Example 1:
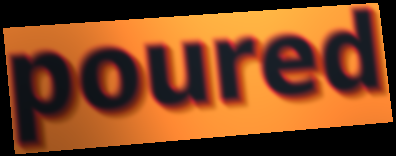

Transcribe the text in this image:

poured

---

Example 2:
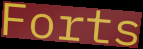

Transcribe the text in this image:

Forts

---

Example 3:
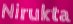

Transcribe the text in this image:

Nirukta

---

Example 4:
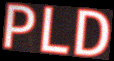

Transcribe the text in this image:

PLD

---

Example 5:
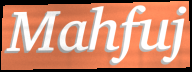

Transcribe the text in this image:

Mahfuj